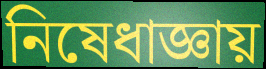
নিষেধাজ্ঞায়